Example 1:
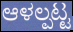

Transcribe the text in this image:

ಆಳಲ್ಪಟ್ಟ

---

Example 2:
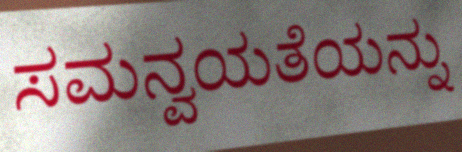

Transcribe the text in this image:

ಸಮನ್ವಯತೆಯನ್ನು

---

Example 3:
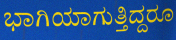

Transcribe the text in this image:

ಭಾಗಿಯಾಗುತ್ತಿದ್ದರೂ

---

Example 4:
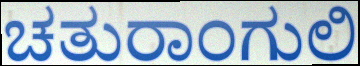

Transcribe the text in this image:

ಚತುರಾಂಗುಲಿ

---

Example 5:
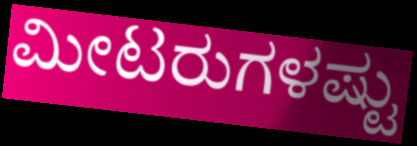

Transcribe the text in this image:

ಮೀಟರುಗಳಷ್ಟು